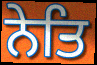
ਨੇਤਿ